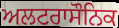
ਅਲਟਰਾਸੌਨਿਕ